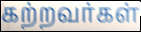
கற்றவர்கள்